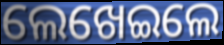
ଲେଖେଇଲେ